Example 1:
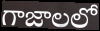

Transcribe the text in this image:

గాజాలలో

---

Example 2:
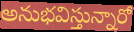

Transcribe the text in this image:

అనుభవిస్తున్నారో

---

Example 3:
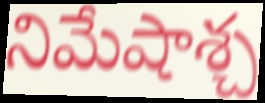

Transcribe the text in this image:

నిమేషాశ్చ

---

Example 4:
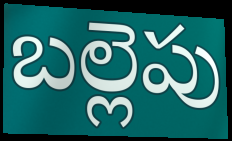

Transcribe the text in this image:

బల్లెపు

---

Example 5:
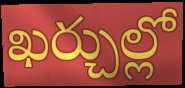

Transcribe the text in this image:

ఖర్చుల్లో